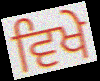
ਵਿਖੇ